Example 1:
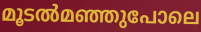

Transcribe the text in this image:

മൂടൽമഞ്ഞുപോലെ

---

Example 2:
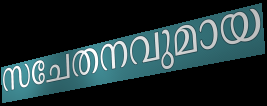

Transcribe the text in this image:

സചേതനവുമായ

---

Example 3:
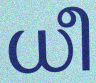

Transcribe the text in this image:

ധീ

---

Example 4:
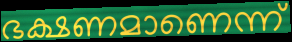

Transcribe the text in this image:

ഭക്ഷണമാണെന്ന്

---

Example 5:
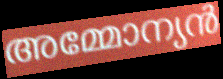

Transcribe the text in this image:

അമ്മോന്യൻ